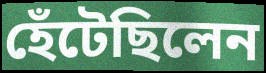
হেঁটেছিলেন